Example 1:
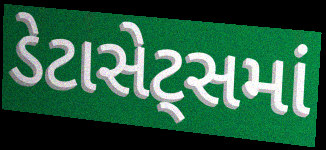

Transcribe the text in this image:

ડેટાસેટ્સમાં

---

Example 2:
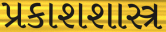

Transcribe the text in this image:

પ્રકાશશાસ્ત્ર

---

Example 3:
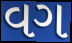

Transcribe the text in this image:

વગ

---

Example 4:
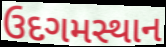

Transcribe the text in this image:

ઉદગમસ્થાન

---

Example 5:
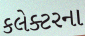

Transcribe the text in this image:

કલેક્ટરના